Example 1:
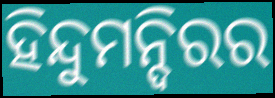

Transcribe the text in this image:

ହିନ୍ଦୁମନ୍ଦିରର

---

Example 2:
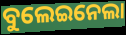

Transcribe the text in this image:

ବୁଲେଇନେଲା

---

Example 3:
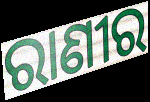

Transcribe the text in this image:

ରାଣୀର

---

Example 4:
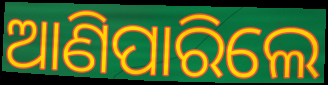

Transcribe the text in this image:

ଆଣିପାରିଲେ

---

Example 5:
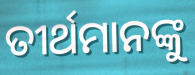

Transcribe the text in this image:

ତୀର୍ଥମାନଙ୍କୁ